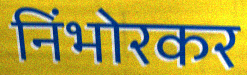
निंभोरकर